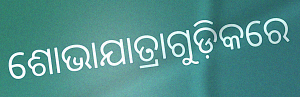
ଶୋଭାଯାତ୍ରାଗୁଡ଼ିକରେ